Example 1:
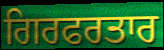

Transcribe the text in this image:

ਗਿਰਫਰਤਾਰ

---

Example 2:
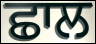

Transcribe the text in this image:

ਛਾਲ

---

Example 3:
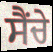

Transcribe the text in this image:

ਸੈਂਚੇ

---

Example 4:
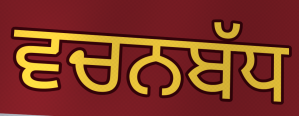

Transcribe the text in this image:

ਵਚਨਬੱਧ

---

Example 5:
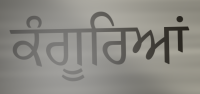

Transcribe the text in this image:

ਕੰਗੂਰਿਆਂ